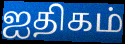
ஐதிகம்